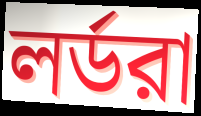
লর্ডরা